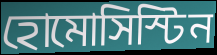
হোমোসিস্টিন